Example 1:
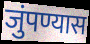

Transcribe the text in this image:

जुंपण्यास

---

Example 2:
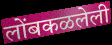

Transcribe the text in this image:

लोंबकळलेली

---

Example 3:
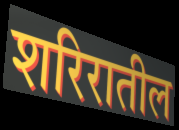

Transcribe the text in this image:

शरिरातील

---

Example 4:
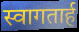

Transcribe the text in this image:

स्वागतार्ह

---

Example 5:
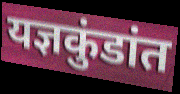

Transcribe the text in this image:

यज्ञकुंडांत